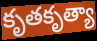
కృతకృత్యా